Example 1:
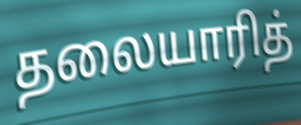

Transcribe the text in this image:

தலையாரித்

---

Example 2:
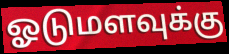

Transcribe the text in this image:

ஓடுமளவுக்கு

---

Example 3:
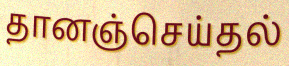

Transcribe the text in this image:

தானஞ்செய்தல்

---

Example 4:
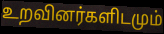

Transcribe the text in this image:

உறவினர்களிடமும்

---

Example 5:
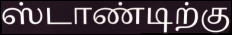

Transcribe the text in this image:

ஸ்டாண்டிற்கு